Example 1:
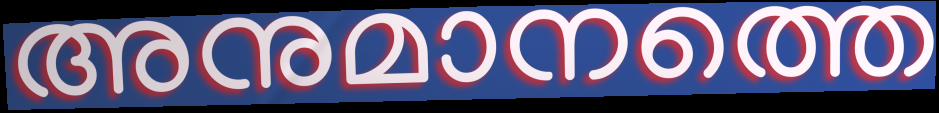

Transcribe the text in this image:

അനുമാനത്തെ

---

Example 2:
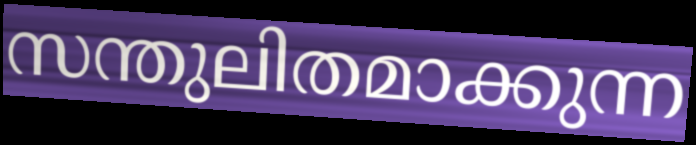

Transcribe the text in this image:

സന്തുലിതമാക്കുന്ന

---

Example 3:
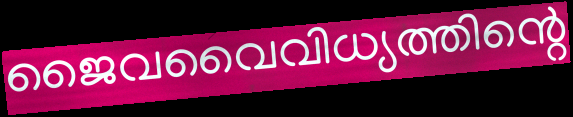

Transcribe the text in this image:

ജൈവവൈവിധ്യത്തിന്റെ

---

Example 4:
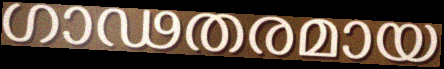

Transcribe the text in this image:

ഗാഢതരമായ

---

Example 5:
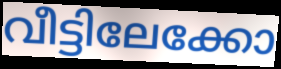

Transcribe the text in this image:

വീട്ടിലേക്കോ